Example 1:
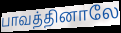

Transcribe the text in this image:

பாவத்தினாலே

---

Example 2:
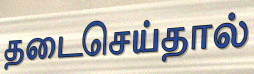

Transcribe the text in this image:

தடைசெய்தால்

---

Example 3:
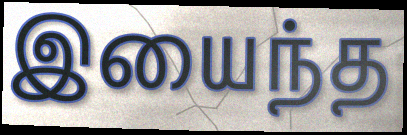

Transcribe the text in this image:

இயைந்த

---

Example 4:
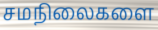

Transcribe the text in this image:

சமநிலைகளை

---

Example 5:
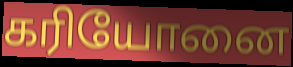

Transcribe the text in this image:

கரியோனை